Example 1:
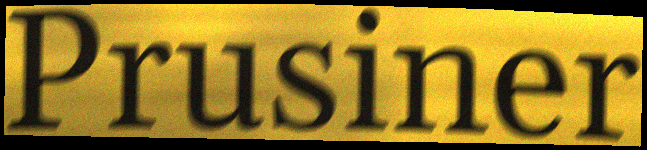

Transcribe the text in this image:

Prusiner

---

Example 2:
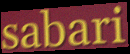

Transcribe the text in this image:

sabari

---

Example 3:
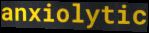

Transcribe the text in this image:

anxiolytic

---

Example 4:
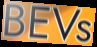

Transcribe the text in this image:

BEVs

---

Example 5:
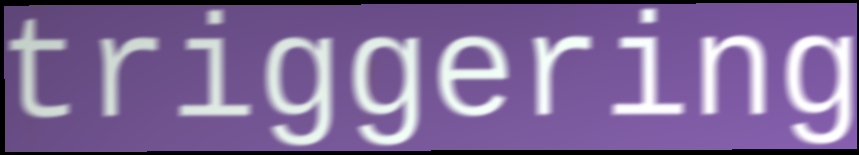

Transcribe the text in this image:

triggering